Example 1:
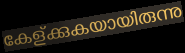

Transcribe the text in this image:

കേള്ക്കുകയായിരുന്നു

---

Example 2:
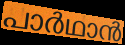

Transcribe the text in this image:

പാർഥാൻ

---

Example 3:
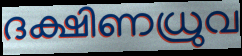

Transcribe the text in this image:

ദക്ഷിണധ്രുവ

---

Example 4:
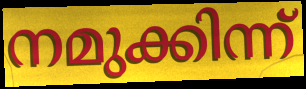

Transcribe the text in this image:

നമുക്കിന്ന്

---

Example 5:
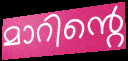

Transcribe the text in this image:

മാറിന്റെ